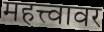
महत्त्वावर